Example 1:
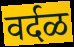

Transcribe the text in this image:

वर्दळ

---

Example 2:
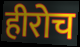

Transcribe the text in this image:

हीरोच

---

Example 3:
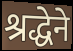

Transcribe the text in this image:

श्रद्धेने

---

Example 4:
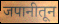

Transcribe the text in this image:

जपानीतून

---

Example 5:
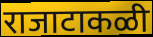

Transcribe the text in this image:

राजाटाकळी